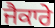
ਜੈਕਾਰੇ